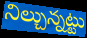
నిల్చున్నట్టు